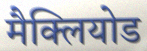
मैक्लियोड